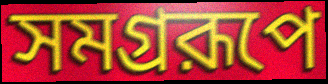
সমগ্ররূপে